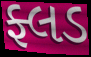
ફ્લડ